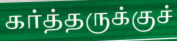
கர்த்தருக்குச்